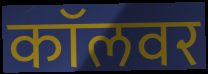
कॉलवर